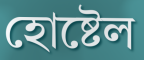
হোষ্টেল